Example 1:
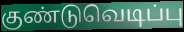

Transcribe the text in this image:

குண்டுவெடிப்பு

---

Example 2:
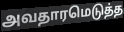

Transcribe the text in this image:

அவதாரமெடுத்த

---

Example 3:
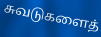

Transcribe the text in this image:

சுவடுகளைத்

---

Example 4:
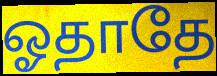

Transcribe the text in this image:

ஓதாதே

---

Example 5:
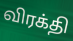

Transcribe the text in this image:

விரக்தி